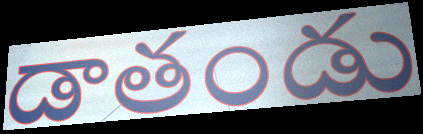
డాతండు